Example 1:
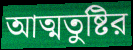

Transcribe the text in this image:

আত্মতুষ্টির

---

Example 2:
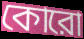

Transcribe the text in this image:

কোরো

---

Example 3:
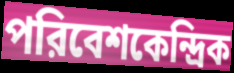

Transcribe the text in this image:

পরিবেশকেন্দ্রিক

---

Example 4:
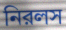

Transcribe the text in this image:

নিরলস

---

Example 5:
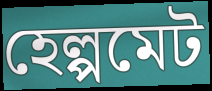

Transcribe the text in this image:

হেল্পমেট